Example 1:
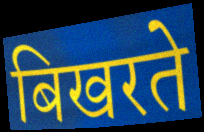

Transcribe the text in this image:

बिखरते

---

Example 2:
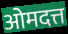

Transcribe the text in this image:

ओमदत्त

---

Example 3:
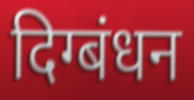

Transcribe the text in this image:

दिग्बंधन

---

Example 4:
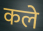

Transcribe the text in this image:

कले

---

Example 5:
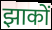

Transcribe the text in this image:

झाकों